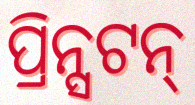
ପ୍ରିନ୍ସଟନ୍